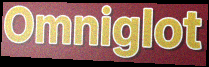
Omniglot